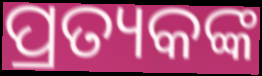
ପ୍ରତ୍ୟକଙ୍କ